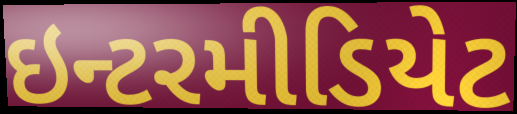
ઇન્ટરમીડિયેટ